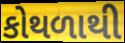
કોથળાથી